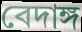
বেদাঙ্গ